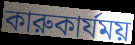
কারুকার্যময়